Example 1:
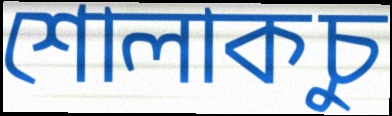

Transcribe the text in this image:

শোলাকচু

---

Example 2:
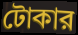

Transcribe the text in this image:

টোকার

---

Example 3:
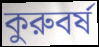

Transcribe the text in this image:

কুরুবর্ষ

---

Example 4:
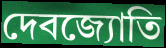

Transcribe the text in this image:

দেবজ্যোতি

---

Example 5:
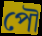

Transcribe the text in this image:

পৌ